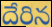
దేరిన